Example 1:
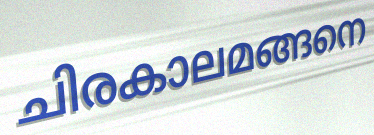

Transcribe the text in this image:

ചിരകാലമങ്ങനെ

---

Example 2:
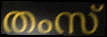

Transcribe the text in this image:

തംസ്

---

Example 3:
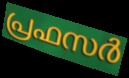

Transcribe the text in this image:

പ്രഫസർ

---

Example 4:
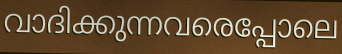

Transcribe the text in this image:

വാദിക്കുന്നവരെപ്പോലെ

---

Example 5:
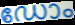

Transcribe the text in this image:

ഡോം